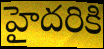
హైదరికి